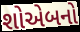
શોએબનો